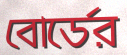
বোর্ডের